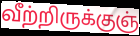
வீற்றிருக்குஞ்